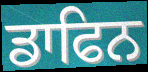
ਡਾਫਿਨ